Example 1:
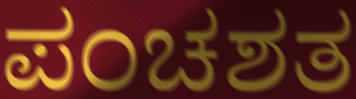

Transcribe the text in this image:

ಪಂಚಶತ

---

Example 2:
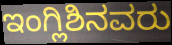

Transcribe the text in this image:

ಇಂಗ್ಲಿಶಿನವರು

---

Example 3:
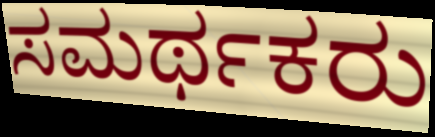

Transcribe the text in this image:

ಸಮರ್ಥಕರು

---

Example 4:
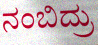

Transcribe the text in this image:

ನಂಬಿದ್ರು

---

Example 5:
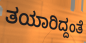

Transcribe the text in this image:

ತಯಾರಿದ್ದಂತೆ